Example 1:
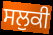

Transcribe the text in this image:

ਸਲੁਕੀ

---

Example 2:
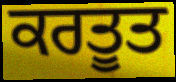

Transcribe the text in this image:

ਕਰਤੂਤ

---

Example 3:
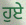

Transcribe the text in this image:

ਹੁਏ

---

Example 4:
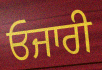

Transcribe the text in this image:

ਓਜਾਰੀ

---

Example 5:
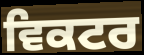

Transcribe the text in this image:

ਵਿਕਟਰ